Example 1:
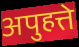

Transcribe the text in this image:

अपुहत्ते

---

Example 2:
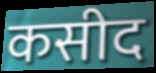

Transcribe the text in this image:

कसीद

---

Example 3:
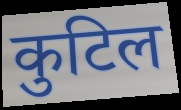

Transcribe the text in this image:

कुटिल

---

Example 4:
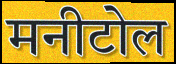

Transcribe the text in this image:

मनीटोल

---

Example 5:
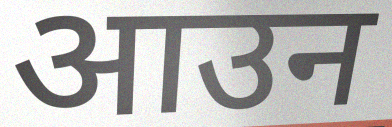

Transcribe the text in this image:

आउन